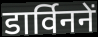
डार्विननें